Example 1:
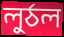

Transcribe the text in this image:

লুঠল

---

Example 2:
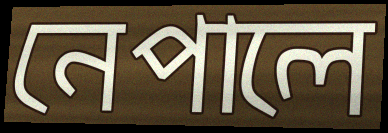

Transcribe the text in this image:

নেপালে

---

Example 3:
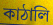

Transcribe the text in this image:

কাঠালি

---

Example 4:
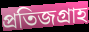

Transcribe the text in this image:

প্রতিজগ্রাহ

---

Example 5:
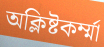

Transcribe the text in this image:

অক্লিষ্টকর্ম্মা